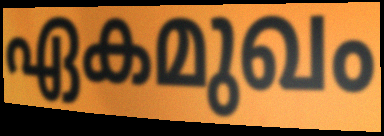
ഏകമുഖം